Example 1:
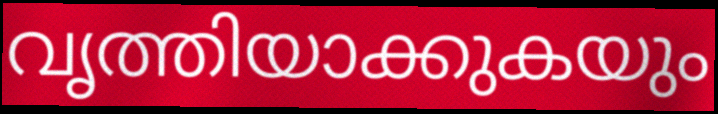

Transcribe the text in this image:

വൃത്തിയാക്കുകയും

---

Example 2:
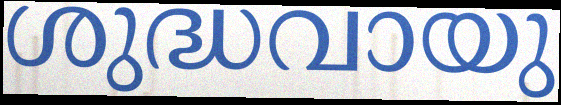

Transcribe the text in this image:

ശുദ്ധവായു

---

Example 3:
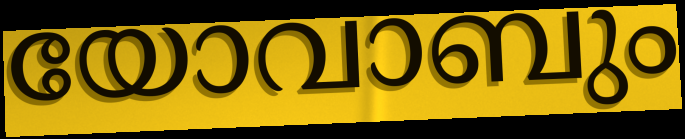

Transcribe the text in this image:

യോവാബും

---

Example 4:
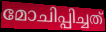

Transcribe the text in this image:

മോചിപ്പിച്ചത്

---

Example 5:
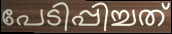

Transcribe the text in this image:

പേടിപ്പിച്ചത്